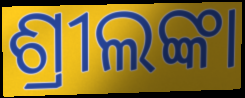
ଶ୍ରୀଲଙ୍କା